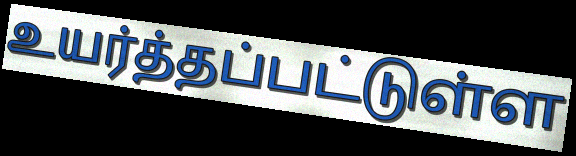
உயர்த்தப்பட்டுள்ள